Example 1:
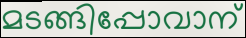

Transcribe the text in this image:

മടങ്ങിപ്പോവാന്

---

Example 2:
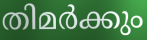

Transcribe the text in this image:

തിമർക്കും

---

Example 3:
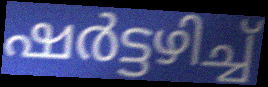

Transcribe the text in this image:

ഷർട്ടഴിച്ച്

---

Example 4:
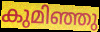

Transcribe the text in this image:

കുമിഞ്ഞു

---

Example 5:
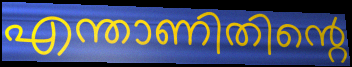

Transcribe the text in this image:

എന്താണിതിന്റെ